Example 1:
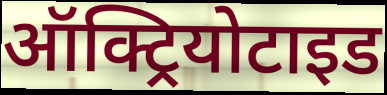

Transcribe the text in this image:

ऑक्ट्रियोटाइड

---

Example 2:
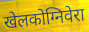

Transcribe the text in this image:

खेलकोग्निवेरा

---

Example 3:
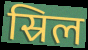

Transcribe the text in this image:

स्रिल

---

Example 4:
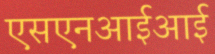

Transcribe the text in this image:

एसएनआईआई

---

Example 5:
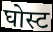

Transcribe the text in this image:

घोस्ट